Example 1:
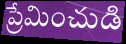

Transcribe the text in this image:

ప్రేమించుడి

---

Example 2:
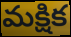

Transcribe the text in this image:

మక్షిక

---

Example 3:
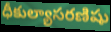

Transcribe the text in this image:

ధీకుల్యాసరణిషు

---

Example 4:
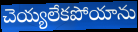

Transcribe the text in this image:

చెయ్యలేకపోయాను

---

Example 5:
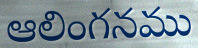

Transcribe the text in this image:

ఆలింగనము